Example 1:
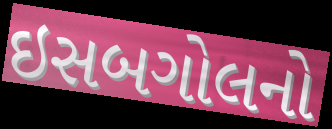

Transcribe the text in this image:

ઇસબગોલનો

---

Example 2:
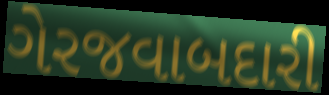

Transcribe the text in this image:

ગેરજવાબદારી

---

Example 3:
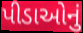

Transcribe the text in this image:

પીડાઓનું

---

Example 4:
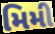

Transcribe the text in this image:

મિમી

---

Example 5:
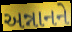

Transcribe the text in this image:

અન્નાનને